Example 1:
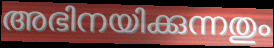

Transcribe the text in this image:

അഭിനയിക്കുന്നതും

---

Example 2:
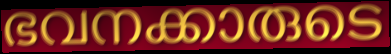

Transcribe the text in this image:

ഭവനക്കാരുടെ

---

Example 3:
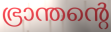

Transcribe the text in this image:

ഭ്രാന്തന്റെ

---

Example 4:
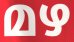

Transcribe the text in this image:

മഴ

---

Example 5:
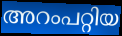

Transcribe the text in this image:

അറംപറ്റിയ